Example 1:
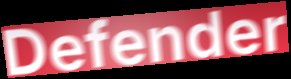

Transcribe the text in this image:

Defender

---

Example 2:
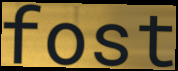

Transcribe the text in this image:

fost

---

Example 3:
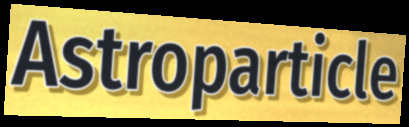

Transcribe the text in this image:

Astroparticle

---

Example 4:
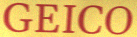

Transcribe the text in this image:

GEICO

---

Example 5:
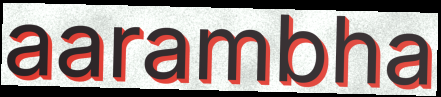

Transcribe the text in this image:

aarambha